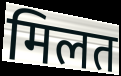
मिलत